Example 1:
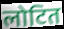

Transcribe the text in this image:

लोटित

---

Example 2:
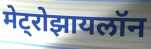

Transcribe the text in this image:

मेट्रोझायलॉन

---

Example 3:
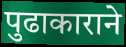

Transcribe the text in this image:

पुढाकाराने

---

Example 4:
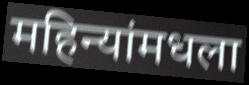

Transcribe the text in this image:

महिन्यांमधला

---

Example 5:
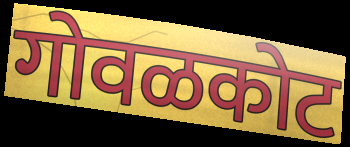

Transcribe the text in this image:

गोवळकोट